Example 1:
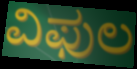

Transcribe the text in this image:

ವಿಫುಲ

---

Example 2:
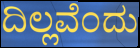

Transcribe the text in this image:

ದಿಲ್ಲವೆಂದು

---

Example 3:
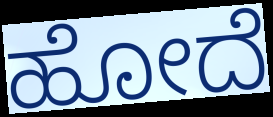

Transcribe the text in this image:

ಹೋದೆ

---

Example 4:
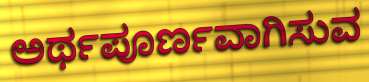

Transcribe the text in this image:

ಅರ್ಥಪೂರ್ಣವಾಗಿಸುವ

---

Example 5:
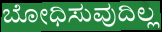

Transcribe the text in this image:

ಬೋಧಿಸುವುದಿಲ್ಲ